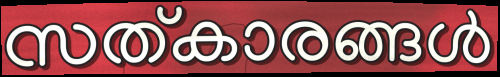
സത്കാരങ്ങൾ